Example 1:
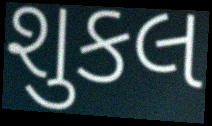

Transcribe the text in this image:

શુકલ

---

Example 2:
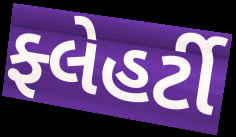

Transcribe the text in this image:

ફ્લેહર્ટી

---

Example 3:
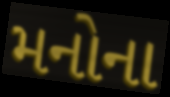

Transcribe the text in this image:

મનોના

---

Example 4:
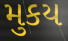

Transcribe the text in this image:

મુકય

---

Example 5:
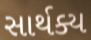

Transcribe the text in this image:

સાર્થક્ય